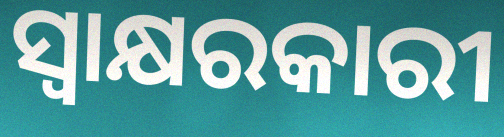
ସ୍ୱାକ୍ଷରକାରୀ